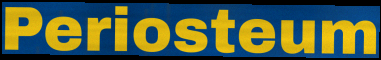
Periosteum